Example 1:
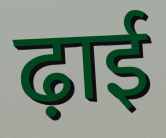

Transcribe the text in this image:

ढ़ाई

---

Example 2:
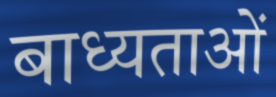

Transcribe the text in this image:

बाध्यताओं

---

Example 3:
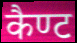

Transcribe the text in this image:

कैण्ट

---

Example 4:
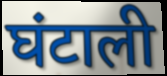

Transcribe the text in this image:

घंटाली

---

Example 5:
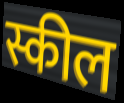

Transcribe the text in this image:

स्‍कील